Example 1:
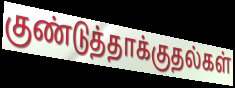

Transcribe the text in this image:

குண்டுத்தாக்குதல்கள்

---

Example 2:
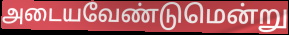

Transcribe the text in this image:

அடையவேண்டுமென்று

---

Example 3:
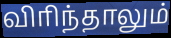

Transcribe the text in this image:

விரிந்தாலும்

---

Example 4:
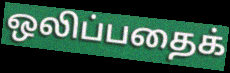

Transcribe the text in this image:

ஒலிப்பதைக்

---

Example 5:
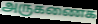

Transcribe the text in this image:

அருகணைக